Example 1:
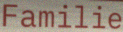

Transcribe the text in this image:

Familie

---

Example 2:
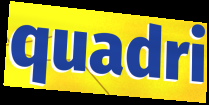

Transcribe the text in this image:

quadri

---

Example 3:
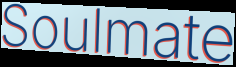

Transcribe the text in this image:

Soulmate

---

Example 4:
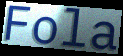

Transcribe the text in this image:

Fola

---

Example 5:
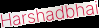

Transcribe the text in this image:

Harshadbhai